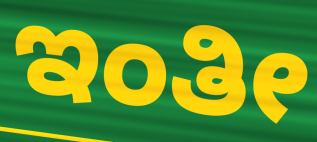
ಇಂತೀ